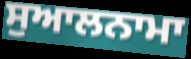
ਸੁਆਲਨਾਮਾ